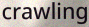
crawling